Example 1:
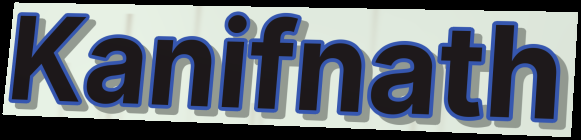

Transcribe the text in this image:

Kanifnath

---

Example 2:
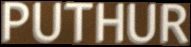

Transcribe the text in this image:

PUTHUR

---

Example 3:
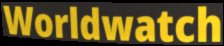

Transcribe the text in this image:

Worldwatch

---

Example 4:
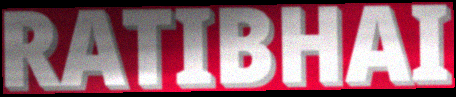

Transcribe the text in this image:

RATIBHAI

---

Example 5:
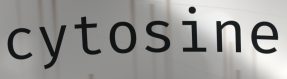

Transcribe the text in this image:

cytosine